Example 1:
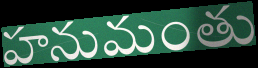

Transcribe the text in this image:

హనుమంతు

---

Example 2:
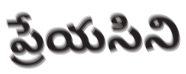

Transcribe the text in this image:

ప్రేయసిని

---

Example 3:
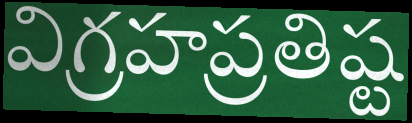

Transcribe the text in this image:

విగ్రహప్రతిష్ట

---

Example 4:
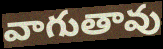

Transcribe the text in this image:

వాగుతావు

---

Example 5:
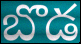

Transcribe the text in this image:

బొడ